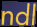
ndl